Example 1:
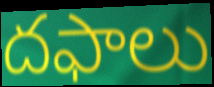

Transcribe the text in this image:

దఫాలు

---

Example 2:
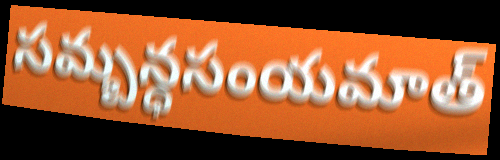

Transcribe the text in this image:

సమ్బన్ధసంయమాత్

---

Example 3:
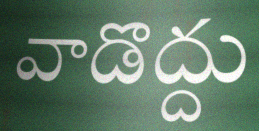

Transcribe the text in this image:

వాడొద్దు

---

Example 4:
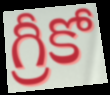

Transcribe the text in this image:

గ్రీకో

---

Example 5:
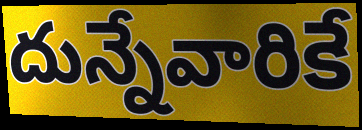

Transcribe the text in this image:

దున్నేవారికే